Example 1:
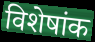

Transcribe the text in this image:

विशेषांक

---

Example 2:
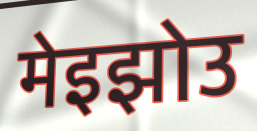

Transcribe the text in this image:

मेइझोउ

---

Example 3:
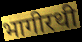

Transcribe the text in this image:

भागीरथी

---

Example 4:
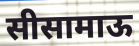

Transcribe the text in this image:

सीसामाऊ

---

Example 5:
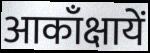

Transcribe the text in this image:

आकाँक्षायें